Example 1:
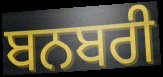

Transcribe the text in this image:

ਬਨਬਰੀ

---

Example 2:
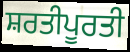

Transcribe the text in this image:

ਸ਼ਰਤੀਪੂਰਤੀ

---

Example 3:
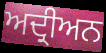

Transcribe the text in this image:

ਅਦ੍ਰੀਅਨ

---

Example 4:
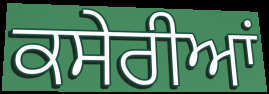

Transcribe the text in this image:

ਕਸੇਰੀਆਂ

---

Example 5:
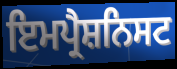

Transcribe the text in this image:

ਇਮਪ੍ਰੈਸ਼ਨਿਸਟ